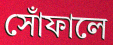
সোঁফালে